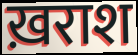
ख़राश